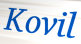
Kovil